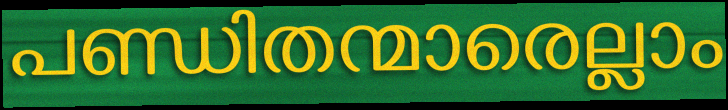
പണ്ഡിതന്മാരെല്ലാം